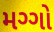
મગ્ગો